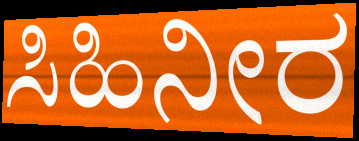
ಸಿಹಿನೀರ